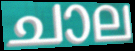
ചാല